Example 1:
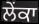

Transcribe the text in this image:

ਲੇਂਕਾ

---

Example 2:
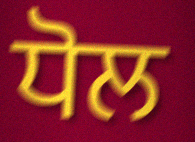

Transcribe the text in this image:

ਧੋਲ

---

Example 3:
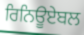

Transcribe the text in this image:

ਰਿਨਿਊਏਬਲ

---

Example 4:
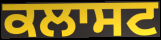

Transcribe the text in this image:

ਕਲਾਸਟ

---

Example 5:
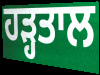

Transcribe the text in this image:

ਹੜ੍ਹਤਾਲ